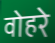
वोहरे